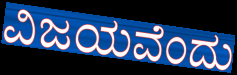
ವಿಜಯವೆಂದು